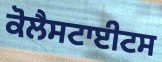
ਕੋਲੈਸਟਾਈਟਸ